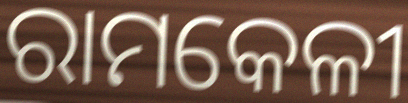
ରାମକେଳୀ